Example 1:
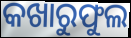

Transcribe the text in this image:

କଖାରୁଫୁଲ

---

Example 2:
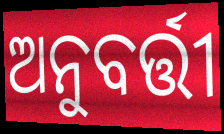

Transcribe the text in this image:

ଅନୁବର୍ତ୍ତୀ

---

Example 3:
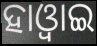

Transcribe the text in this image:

ହାଓ୍ୱାଇ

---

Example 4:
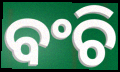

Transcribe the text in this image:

ବଂଚି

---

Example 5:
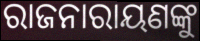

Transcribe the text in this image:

ରାଜନାରାୟଣଙ୍କୁ